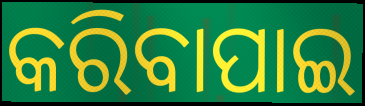
କରିବାପାଇ